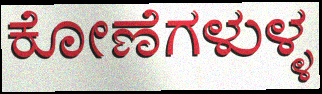
ಕೋಣೆಗಳುಳ್ಳ